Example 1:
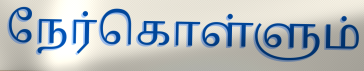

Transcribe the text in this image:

நேர்கொள்ளும்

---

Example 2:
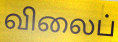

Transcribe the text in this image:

விலைப்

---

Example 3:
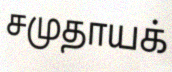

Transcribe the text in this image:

சமுதாயக்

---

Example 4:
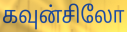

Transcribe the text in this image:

கவுன்சிலோ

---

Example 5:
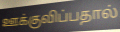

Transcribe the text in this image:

ஊக்குவிப்பதால்